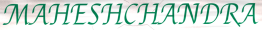
MAHESHCHANDRA